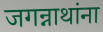
जगन्नाथांना